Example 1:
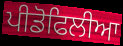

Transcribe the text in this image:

ਪੀਡੋਫਿਲੀਆ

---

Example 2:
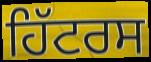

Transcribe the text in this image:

ਹਿੱਟਰਸ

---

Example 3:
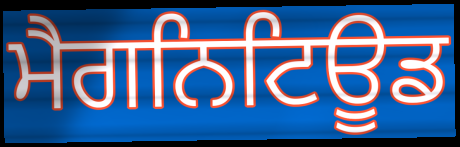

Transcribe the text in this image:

ਮੈਗਨਿਟਿਊਡ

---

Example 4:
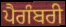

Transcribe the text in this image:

ਪੈਗੰਬਰੀ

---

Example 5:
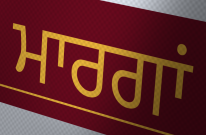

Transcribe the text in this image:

ਮਾਰਗਾਂ